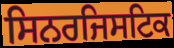
ਸਿਨਰਜਿਸਟਿਕ